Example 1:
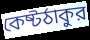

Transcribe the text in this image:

কেষ্টঠাকুর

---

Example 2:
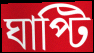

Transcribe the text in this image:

ঘাপ্টি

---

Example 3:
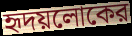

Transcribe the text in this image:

হৃদয়লোকের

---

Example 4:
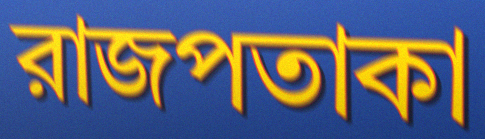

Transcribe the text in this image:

রাজপতাকা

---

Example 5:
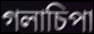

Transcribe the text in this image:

গলাচিপা